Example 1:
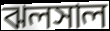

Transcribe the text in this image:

ঝলসাল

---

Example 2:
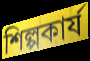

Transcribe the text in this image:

শিল্পকার্য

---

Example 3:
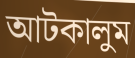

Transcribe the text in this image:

আটকালুম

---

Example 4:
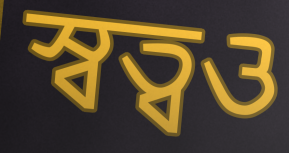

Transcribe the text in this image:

স্বত্বও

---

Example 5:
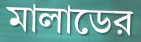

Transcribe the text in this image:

মালাডের